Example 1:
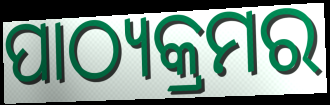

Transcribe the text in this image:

ପାଠ୍ୟକ୍ରମର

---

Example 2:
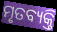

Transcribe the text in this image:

ମୃତବ୍ୟକ୍ତି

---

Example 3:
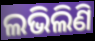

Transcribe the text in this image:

ଲଭିଲିଣି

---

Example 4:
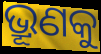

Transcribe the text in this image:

ଭ୍ରୂଣକୁ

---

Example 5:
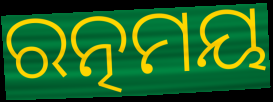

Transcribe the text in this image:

ରତ୍ନମୟ